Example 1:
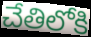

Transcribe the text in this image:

చేతిలోకి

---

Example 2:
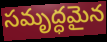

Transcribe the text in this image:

సమృద్ధమైన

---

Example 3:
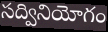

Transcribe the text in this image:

సద్వినియోగం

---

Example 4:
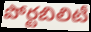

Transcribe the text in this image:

పోర్టబిలిటీ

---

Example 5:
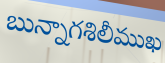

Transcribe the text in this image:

బున్నాగశిలీముఖ